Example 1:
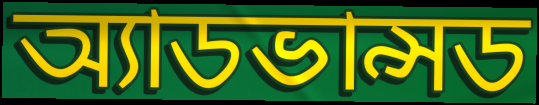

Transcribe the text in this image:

অ্যাডভান্সড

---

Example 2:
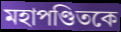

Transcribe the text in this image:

মহাপণ্ডিতকে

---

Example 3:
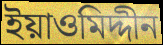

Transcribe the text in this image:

ইয়াওমিদ্দীন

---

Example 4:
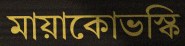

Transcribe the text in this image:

মায়াকোভস্কি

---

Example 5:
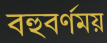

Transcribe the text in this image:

বহুবর্ণময়